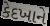
કેદખાને